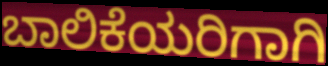
ಬಾಲಿಕೆಯರಿಗಾಗಿ